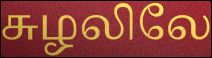
சுழலிலே